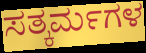
ಸತ್ಕರ್ಮಗಳ